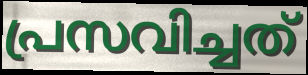
പ്രസവിച്ചത്